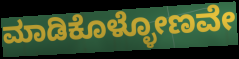
ಮಾಡಿಕೊಳ್ಳೋಣವೇ